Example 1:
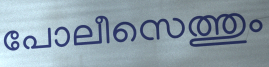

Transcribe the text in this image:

പോലീസെത്തും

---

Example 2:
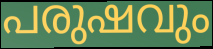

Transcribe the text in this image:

പരുഷവും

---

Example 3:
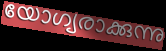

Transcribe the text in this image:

യോഗ്യരാക്കുന്നു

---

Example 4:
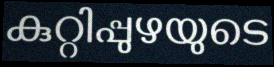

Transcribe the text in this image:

കുറ്റിപ്പുഴയുടെ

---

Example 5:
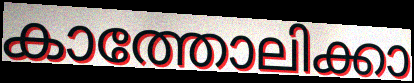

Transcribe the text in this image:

കാത്തോലിക്കാ